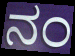
ನಂ